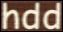
hdd